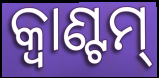
କ୍ୱାଣ୍ଟମ୍